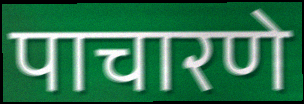
पाचारणे